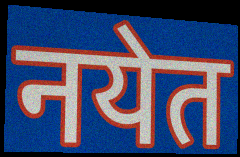
नयेत